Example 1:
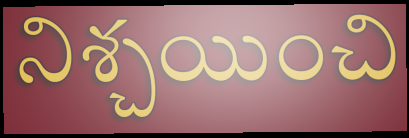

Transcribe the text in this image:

నిశ్చయించి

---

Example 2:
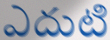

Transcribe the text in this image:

ఎదుటి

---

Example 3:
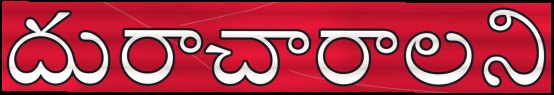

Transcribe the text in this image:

దురాచారాలని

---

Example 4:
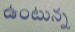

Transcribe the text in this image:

ఉంటున్న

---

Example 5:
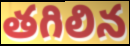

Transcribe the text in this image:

తగిలిన